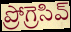
ప్రోగ్రెసివ్